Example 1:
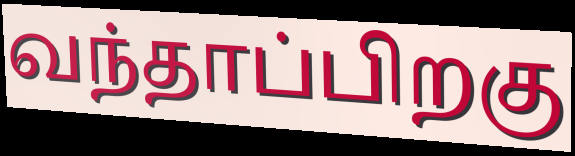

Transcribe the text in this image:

வந்தாப்பிறகு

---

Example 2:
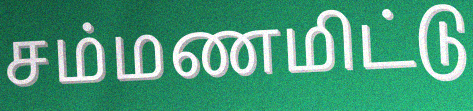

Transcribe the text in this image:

சம்மணமிட்டு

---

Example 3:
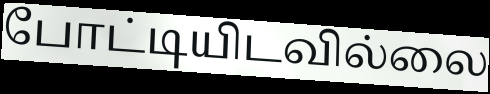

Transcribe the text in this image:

போட்டியிடவில்லை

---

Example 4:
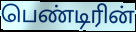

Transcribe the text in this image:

பெண்டிரின்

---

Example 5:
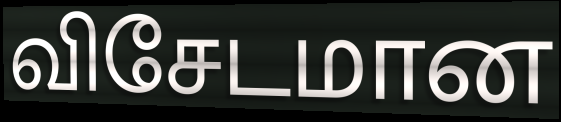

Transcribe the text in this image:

விசேடமான